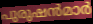
പുരുഷൻമാർ